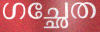
ഗച്ഛേത